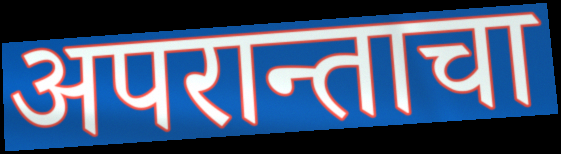
अपरान्ताचा